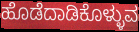
ಹೊಡೆದಾಡಿಕೊಳ್ಳುವ